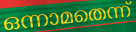
ഒന്നാമതെന്ന്